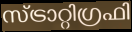
സ്ട്രാറ്റിഗ്രഫി